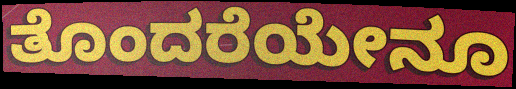
ತೊಂದರೆಯೇನೂ